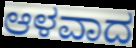
ಆಳವಾದ